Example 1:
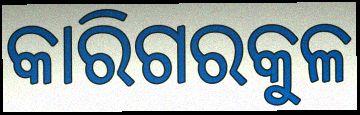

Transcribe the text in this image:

କାରିଗରକୁଳ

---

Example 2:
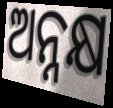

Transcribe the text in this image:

ଅନ୍ନକ୍ଷ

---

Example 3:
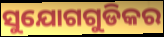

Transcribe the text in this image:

ସୁଯୋଗଗୁଡିକର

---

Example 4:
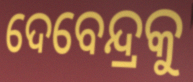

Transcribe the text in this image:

ଦେବେନ୍ଦ୍ରକୁ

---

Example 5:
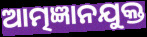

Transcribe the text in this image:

ଆତ୍ମଜ୍ଞାନଯୁକ୍ତ